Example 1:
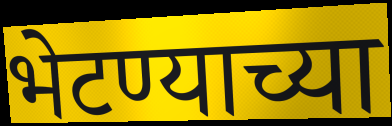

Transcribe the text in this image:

भेटण्याच्या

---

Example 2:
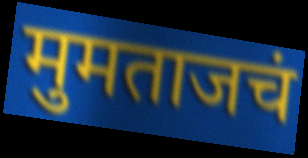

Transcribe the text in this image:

मुमताजचं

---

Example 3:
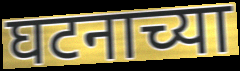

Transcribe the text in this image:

घटनाच्या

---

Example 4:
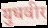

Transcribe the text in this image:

युधवीर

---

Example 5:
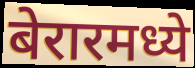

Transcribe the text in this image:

बेरारमध्ये